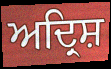
ਅਦ੍ਰਿਸ਼